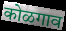
कोळगाव